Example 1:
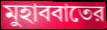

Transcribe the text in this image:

মুহাববাতের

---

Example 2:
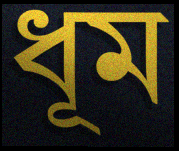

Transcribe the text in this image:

ধূম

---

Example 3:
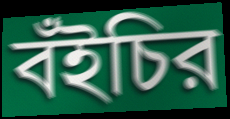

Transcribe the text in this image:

বঁইচির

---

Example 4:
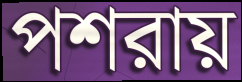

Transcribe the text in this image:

পশরায়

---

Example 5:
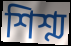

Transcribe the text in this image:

শিশ্ম